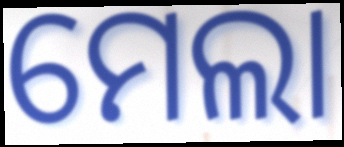
ମେଲା